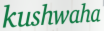
kushwaha